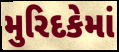
મુરિદકેમાં